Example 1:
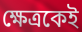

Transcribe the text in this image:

ক্ষেত্রকেই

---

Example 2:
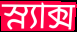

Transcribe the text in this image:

স্ন্যাক্স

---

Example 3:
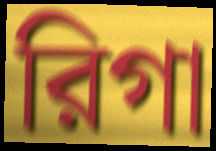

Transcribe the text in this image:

রিগা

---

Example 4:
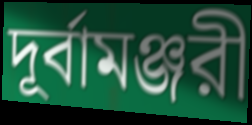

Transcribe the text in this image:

দূর্বামঞ্জরী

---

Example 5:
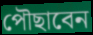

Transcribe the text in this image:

পৌছাবেন